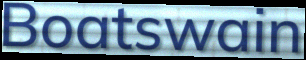
Boatswain